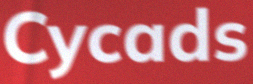
Cycads